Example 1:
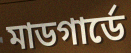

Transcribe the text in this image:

মাডগার্ডে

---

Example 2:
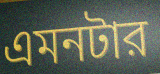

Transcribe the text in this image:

এমনটার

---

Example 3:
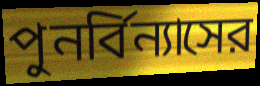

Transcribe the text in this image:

পুনর্বিন্যাসের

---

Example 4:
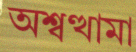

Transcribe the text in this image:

অশ্বত্থামা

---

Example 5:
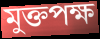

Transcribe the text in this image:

মুক্তপক্ষ